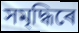
সমৃদ্ধিৰে